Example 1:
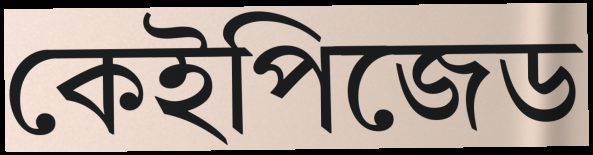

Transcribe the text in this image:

কেইপিজেড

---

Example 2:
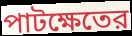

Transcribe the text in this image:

পাটক্ষেতের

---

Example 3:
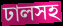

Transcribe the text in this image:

ঢালসহ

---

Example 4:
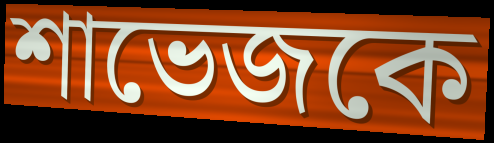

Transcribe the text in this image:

শাভেজকে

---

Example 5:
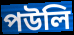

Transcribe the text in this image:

পউলি